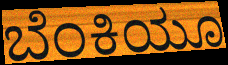
ಬೆಂಕಿಯೂ